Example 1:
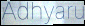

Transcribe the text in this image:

Adhyaru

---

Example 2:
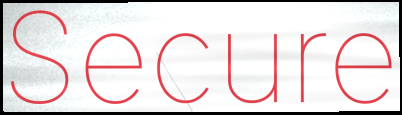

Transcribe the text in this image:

Secure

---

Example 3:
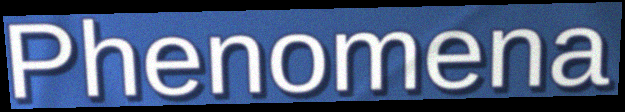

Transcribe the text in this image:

Phenomena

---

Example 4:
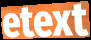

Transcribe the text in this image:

etext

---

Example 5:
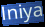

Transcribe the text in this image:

Iniya